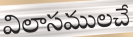
విలాసములచే